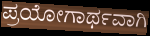
ಪ್ರಯೋಗಾರ್ಥವಾಗಿ